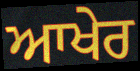
ਆਖੇਰ